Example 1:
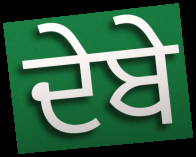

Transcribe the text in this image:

ਦੇਬੇ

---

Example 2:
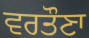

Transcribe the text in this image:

ਵਰਤੌਣਾ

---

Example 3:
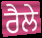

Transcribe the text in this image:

ਰੈਲੇ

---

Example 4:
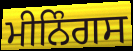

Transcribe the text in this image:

ਮੀਨਿੰਗਸ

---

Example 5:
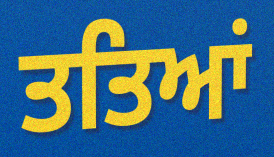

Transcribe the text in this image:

ਤਤਿਆਂ